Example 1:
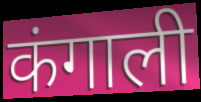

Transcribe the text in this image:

कंगाली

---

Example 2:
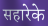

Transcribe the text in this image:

सहारेके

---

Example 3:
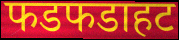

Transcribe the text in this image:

फडफडाहट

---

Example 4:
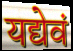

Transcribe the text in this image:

यद्येवं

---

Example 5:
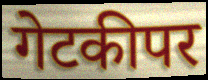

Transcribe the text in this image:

गेटकीपर